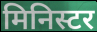
मिनिस्टर